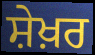
ਸ਼ੇਖ਼ਰ